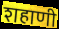
शहाणी